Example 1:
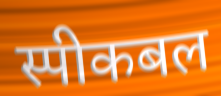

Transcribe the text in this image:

स्पीकबल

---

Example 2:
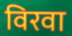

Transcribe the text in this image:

विरवा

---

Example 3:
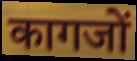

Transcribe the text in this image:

कागजों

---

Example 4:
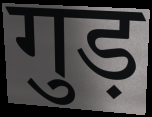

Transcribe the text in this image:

गुड़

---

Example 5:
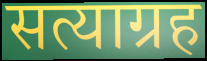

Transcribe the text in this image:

सत्याग्रह